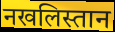
नखलिस्तान